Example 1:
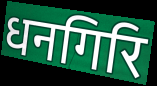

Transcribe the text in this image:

धनगिरि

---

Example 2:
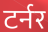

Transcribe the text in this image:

टर्नर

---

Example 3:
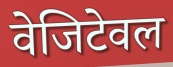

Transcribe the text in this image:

वेजिटेवल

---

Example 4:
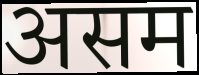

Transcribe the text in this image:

असम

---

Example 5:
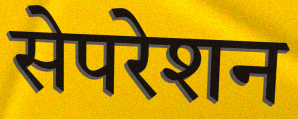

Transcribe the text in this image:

सेपरेशन